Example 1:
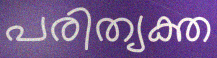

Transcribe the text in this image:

പരിത്യക്ത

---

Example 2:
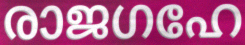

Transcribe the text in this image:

രാജഗഹേ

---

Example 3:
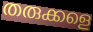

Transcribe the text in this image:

തരുക്കളെ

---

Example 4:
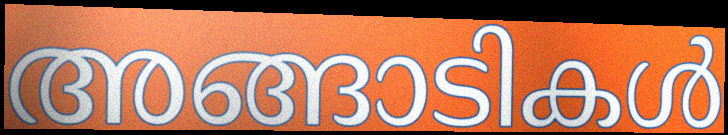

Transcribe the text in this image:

അങ്ങാടികൾ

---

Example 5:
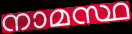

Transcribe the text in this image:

നാമസ്ഥ